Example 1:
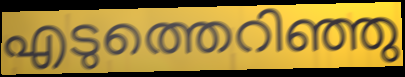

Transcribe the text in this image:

എടുത്തെറിഞ്ഞു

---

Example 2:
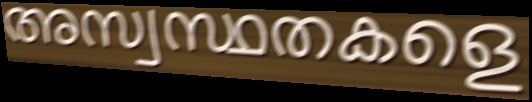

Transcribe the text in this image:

അസ്വസ്ഥതകളെ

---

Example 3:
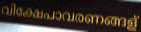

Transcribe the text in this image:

വിക്ഷേപാവരണങ്ങള്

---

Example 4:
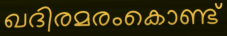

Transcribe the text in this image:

ഖദിരമരംകൊണ്ട്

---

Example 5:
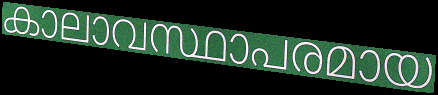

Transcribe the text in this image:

കാലാവസ്ഥാപരമായ